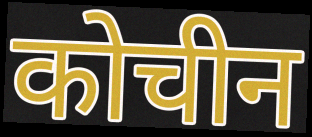
कोचीन